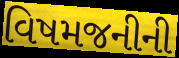
વિષમજનીની